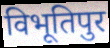
विभूतिपुर